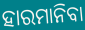
ହାରମାନିବା